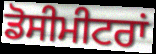
ਡੋਸੀਮੀਟਰਾਂ